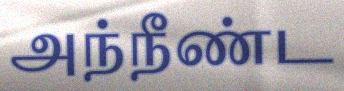
அந்நீண்ட